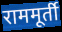
राममूर्ती